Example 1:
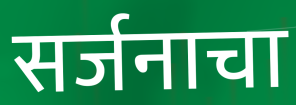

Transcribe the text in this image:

सर्जनाचा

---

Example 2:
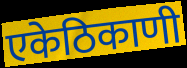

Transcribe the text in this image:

एकेठिकाणी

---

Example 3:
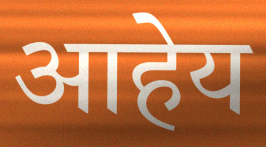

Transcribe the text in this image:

आहेय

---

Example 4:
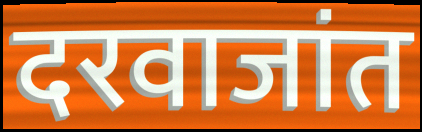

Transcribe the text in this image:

दरवाजांत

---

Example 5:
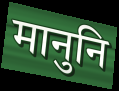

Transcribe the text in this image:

मानुनि